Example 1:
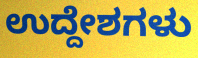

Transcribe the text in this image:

ಉದ್ದೇಶಗಳು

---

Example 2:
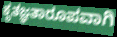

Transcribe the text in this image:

ಕೃತಜ್ಞತಾರೂಪವಾಗಿ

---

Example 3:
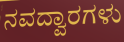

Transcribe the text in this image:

ನವದ್ವಾರಗಳು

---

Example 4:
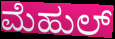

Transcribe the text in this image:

ಮೆಹುಲ್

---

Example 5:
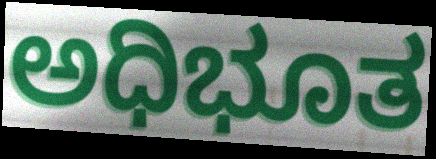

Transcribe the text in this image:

ಅಧಿಭೂತ